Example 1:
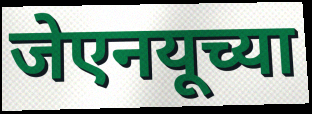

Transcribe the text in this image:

जेएनयूच्या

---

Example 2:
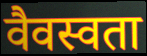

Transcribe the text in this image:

वैवस्वता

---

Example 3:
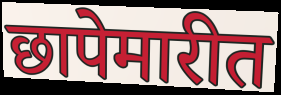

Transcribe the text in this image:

छापेमारीत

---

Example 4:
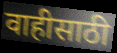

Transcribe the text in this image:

वाहीसाठी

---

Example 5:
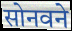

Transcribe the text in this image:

सोनवने